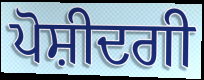
ਪੋਸ਼ੀਦਗੀ